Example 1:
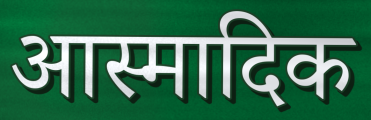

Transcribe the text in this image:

आस्मादिक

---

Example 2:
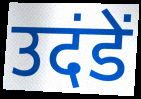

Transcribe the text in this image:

उदंडें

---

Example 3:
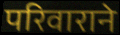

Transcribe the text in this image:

परिवाराने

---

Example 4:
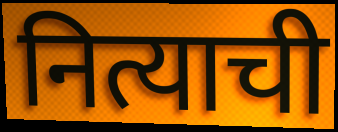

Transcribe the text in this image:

नित्याची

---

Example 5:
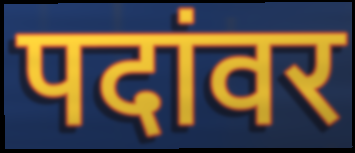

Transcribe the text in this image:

पदांवर